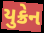
યુક્રેન